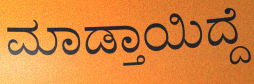
ಮಾಡ್ತಾಯಿದ್ದೆ